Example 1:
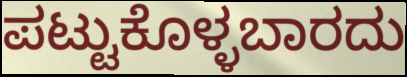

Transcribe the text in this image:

ಪಟ್ಟುಕೊಳ್ಳಬಾರದು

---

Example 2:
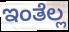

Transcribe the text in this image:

ಇಂತೆಲ್ಲ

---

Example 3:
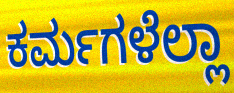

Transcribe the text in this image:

ಕರ್ಮಗಳೆಲ್ಲಾ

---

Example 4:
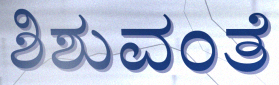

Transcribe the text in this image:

ಶಿಶುವಂತೆ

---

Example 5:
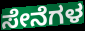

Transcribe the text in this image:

ಸೇನೆಗಳ